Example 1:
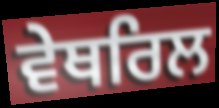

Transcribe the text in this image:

ਵੇਥਰਿਲ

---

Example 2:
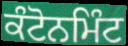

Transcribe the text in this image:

ਕੰਟੋਨਮਿੰਟ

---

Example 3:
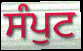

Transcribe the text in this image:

ਸੰਪੁਟ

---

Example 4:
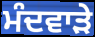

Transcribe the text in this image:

ਮੰਦਵਾੜੇ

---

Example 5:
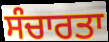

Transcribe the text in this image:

ਸੰਚਾਰਤਾ